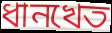
ধানখেত